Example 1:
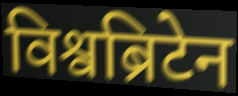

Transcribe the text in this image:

विश्वब्रिटेन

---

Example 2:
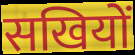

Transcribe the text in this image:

सखियों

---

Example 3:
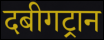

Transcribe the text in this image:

दबीगट्रान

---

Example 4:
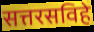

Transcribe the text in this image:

सत्तरसविहे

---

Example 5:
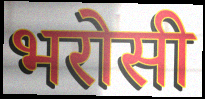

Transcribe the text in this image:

भरोसी